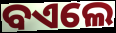
ବଏଲେ